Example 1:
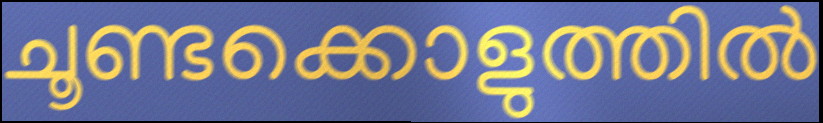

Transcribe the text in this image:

ചൂണ്ടക്കൊളുത്തിൽ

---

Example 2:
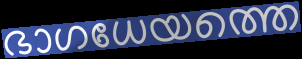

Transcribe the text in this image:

ഭാഗധേയത്തെ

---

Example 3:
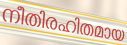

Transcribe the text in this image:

നീതിരഹിതമായ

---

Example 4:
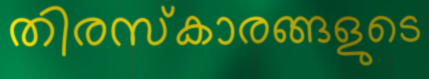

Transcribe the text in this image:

തിരസ്കാരങ്ങളുടെ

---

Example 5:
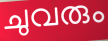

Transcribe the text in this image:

ചുവരും